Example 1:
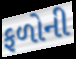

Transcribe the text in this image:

ફળોની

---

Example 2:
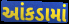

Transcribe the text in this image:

આંકડામાં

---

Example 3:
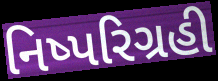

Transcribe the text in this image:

નિષ્પરિગ્રહી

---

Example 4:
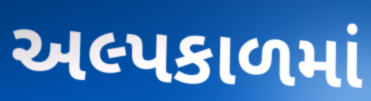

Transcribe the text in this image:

અલ્પકાળમાં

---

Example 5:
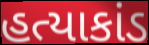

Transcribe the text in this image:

હત્યાકાંડ